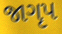
જાગૃપ